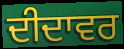
ਦੀਦਾਵਰ